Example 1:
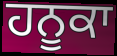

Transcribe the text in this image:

ਹਨੂਕਾ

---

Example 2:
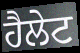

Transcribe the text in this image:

ਹੈਲੇਟ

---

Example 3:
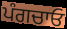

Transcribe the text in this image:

ਪੰਗਚਾਓ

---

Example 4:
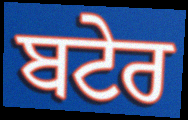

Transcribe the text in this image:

ਬਟੇਰ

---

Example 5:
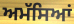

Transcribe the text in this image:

ਅਮੱਸਿਆਂ